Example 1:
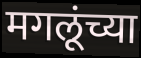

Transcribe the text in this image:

मगलूंच्या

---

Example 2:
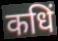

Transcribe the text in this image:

कधिं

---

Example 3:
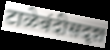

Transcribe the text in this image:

टाळेबंदीसदृश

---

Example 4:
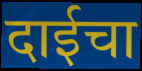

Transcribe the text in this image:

दाईचा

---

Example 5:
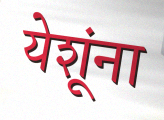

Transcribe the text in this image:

येशूंना